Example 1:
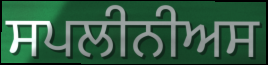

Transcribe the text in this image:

ਸਪਲੀਨੀਅਸ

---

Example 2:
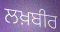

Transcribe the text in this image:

ਲਖ਼ਬੀਰ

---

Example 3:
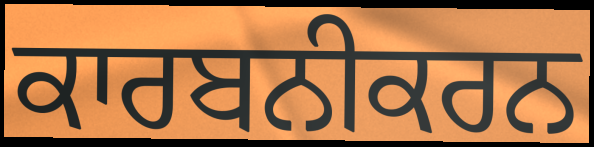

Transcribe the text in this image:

ਕਾਰਬਨੀਕਰਨ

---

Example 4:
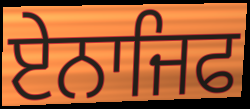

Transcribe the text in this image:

ਏਨਾਜਿਫ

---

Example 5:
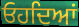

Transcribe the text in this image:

ਓਹਦਿਆਂ